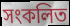
সংকলিত